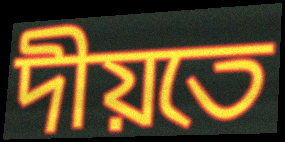
দীয়তে